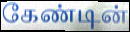
கேண்டின்